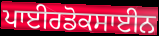
ਪਾਈਰਡੋਕਸਾਈਨ